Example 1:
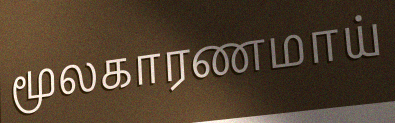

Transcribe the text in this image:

மூலகாரணமாய்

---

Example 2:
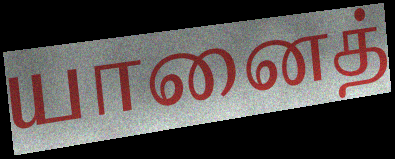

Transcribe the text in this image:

யானைத்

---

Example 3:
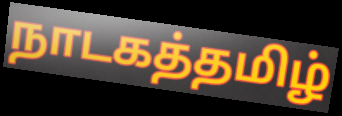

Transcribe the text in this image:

நாடகத்தமிழ்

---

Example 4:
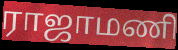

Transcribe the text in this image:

ராஜாமணி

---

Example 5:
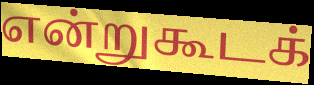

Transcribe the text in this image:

என்றுகூடக்